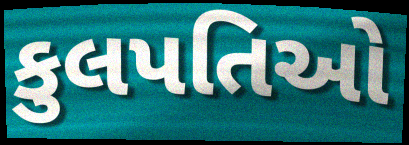
કુલપતિઓ